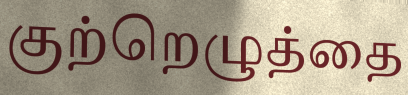
குற்றெழுத்தை